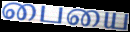
பையை